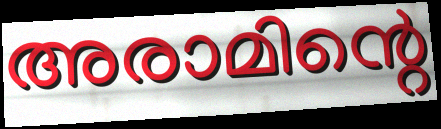
അരാമിന്റെ